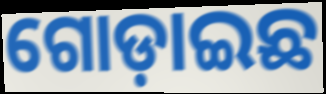
ଗୋଡ଼ାଇଛ